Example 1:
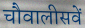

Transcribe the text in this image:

चौवालीसवें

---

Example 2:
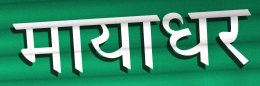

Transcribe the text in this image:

मायाधर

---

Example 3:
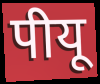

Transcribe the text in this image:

पीयू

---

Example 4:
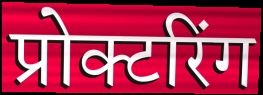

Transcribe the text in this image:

प्रोक्टरिंग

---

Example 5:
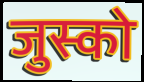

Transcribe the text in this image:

जुस्को